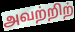
அவற்றிற்